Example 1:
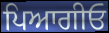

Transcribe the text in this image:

ਪਿਆਗੀਓ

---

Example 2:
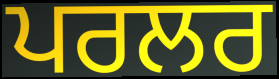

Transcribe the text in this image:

ਪਰਲਰ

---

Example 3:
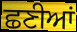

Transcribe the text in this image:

ਛਣੀਆਂ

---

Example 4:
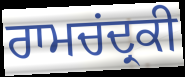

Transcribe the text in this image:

ਰਾਮਚਂਦ੍ਰਕੀ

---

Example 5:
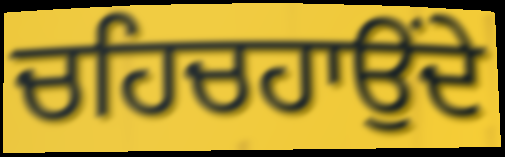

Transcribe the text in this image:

ਚਹਿਚਹਾਉਂਦੇ